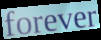
forever